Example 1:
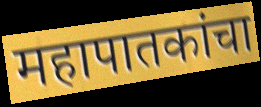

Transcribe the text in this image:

महापातकांचा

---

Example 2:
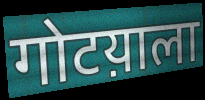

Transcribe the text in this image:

गोटय़ाला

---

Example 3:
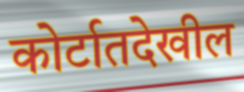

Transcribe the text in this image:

कोर्टातदेखील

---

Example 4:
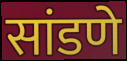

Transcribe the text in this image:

सांडणे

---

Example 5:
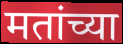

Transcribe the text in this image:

मतांच्या